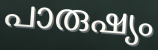
പാരുഷ്യം